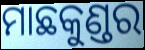
ମାଛକୁଣ୍ଡର